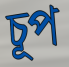
চূপ